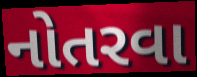
નોતરવા